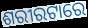
ଶରୀରଟାରେ